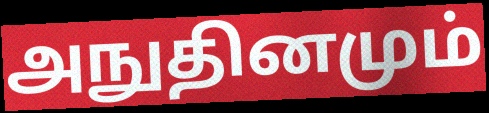
அநுதினமும்